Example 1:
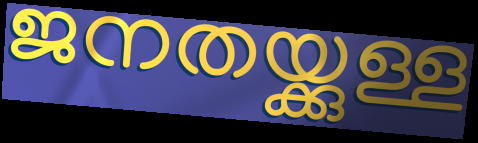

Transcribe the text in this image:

ജനതയ്ക്കുള്ള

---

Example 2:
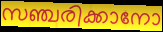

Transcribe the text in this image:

സഞ്ചരിക്കാനോ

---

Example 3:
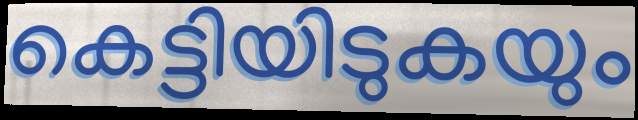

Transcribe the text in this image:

കെട്ടിയിടുകയും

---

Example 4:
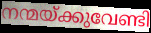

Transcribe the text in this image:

നന്മയ്ക്കുവേണ്ടി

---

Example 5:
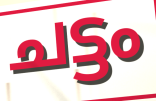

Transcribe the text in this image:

ചട്ടം